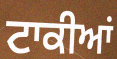
ਟਾਕੀਆਂ